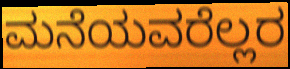
ಮನೆಯವರೆಲ್ಲರ